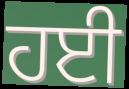
ਹਈ